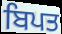
ਬਿਪਤ